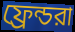
ফ্রেন্ডরা